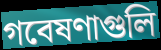
গবেষণাগুলি